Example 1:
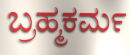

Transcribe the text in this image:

ಬ್ರಹ್ಮಕರ್ಮ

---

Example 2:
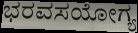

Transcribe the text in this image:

ಭರವಸಯೋಗ್ಯ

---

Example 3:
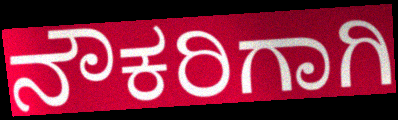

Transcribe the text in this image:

ನೌಕರಿಗಾಗಿ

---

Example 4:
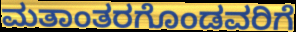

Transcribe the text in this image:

ಮತಾಂತರಗೊಂಡವರಿಗೆ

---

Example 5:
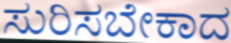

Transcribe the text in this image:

ಸುರಿಸಬೇಕಾದ